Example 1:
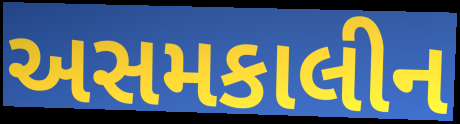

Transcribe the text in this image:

અસમકાલીન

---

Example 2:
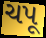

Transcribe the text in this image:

ચપૂ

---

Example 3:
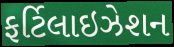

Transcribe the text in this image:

ફર્ટિલાઇઝેશન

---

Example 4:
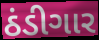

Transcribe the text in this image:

ઠંડીગાર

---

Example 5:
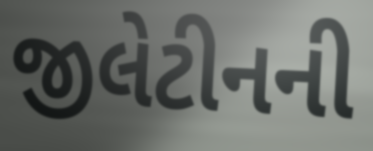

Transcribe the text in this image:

જીલેટીનની